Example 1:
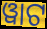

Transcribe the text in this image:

ୱାଟ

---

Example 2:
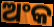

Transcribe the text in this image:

ଅଂକ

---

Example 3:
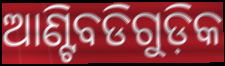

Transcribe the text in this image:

ଆଣ୍ଟିବଡିଗୁଡ଼ିକ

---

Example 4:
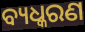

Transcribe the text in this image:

ବ୍ୟଧ୍କରଣ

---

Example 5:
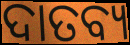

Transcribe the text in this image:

ଦାତବ୍ୟ